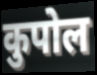
कुपोल